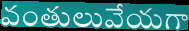
వంతులువేయగా